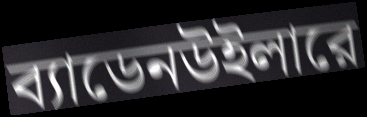
ব্যাডেনউইলারে